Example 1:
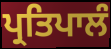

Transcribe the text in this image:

ਪ੍ਰਤਿਪਾਲੰ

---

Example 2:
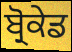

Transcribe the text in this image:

ਬ੍ਰੋਕੇਡ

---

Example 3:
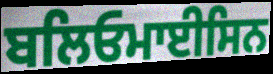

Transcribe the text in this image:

ਬਲਿਓਮਾਈਸਿਨ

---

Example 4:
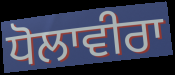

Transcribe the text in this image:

ਧੋਲਾਵੀਰਾ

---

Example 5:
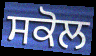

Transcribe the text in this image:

ਸਕੋਲ